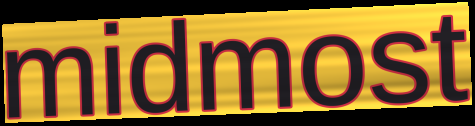
midmost